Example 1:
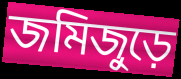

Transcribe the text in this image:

জমিজুড়ে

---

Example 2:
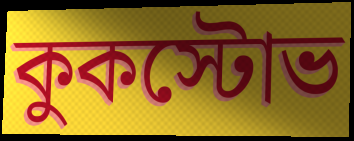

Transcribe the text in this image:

কুকস্টোভ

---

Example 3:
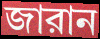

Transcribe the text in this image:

জারান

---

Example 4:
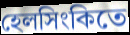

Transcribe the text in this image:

হেলসিংকিতে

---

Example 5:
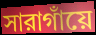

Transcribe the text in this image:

সারাগাঁয়ে